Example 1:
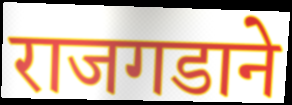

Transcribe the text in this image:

राजगडाने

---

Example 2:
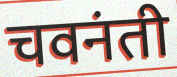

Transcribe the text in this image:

चवनंती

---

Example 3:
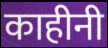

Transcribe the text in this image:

काहीनी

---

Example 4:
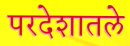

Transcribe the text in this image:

परदेशातले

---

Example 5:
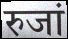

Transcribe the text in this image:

रुजां